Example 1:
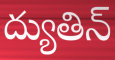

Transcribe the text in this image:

ద్యుతిన్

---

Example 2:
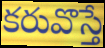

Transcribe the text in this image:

కరువొస్తే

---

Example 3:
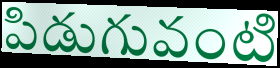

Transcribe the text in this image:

పిడుగువంటి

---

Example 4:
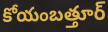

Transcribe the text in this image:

కోయంబత్తూర్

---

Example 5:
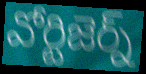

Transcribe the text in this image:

వోర్టిజెర్న్